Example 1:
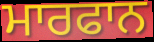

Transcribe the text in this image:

ਮਾਰਫਾਨ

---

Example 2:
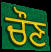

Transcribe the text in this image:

ਚੌਣ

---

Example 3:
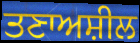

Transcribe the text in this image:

ਤਣਾਅਸ਼ੀਲ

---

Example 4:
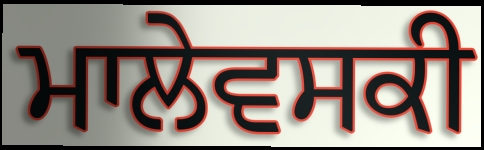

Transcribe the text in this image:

ਮਾਲੇਵਸਕੀ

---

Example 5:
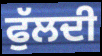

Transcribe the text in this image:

ਫੁੱਲਦੀ